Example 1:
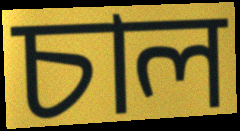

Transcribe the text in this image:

চাল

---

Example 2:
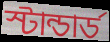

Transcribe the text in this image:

স্টান্ডার্ড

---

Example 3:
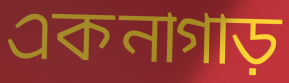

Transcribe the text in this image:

একনাগাড়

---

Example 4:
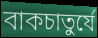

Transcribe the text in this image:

বাকচাতুর্যে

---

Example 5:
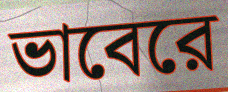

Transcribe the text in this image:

ভাবেরে